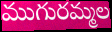
ముగురమ్మల